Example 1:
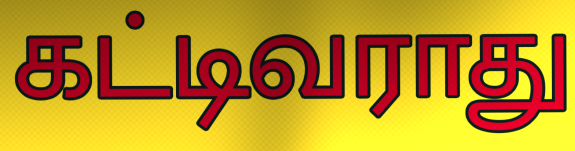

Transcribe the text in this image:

கட்டிவராது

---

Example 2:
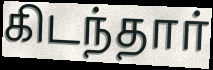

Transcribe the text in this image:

கிடந்தார்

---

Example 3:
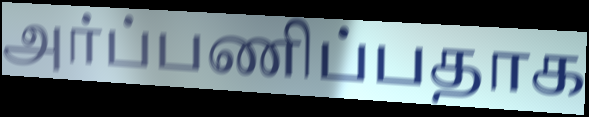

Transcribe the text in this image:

அர்ப்பணிப்பதாக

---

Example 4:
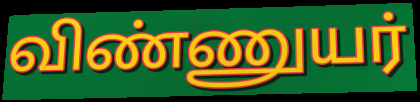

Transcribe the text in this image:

விண்ணுயர்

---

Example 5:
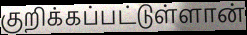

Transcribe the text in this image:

குறிக்கப்பட்டுள்ளான்